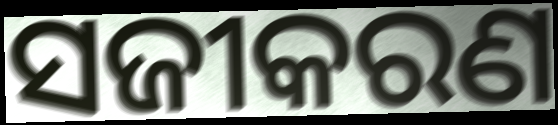
ସଜୀକରଣ